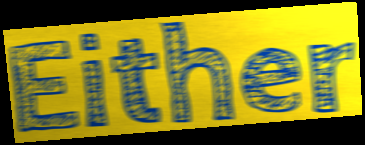
Either